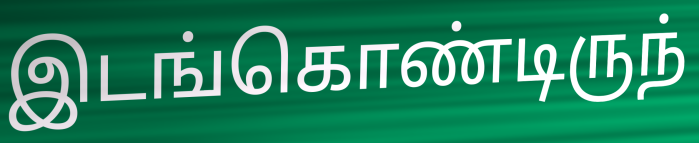
இடங்கொண்டிருந்